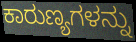
ಕಾರುಣ್ಯಗಳನ್ನು